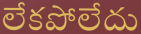
లేకపోలేదు